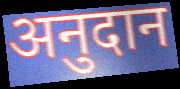
अनुदान